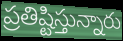
ప్రతిష్టిస్తున్నారు